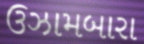
ઉઝામબારા